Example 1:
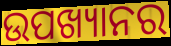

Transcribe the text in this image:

ଉପଖ୍ୟାନର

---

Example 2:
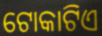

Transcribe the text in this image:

ଟୋକାଟିଏ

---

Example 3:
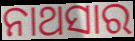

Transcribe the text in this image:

ନାଥସାର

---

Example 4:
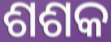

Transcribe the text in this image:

ଶଶକ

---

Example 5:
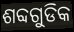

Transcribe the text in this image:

ଶବ୍ଦଗୁଡିକ